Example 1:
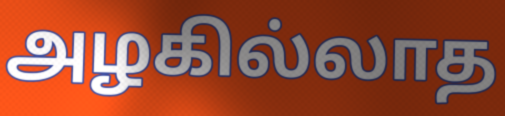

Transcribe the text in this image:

அழகில்லாத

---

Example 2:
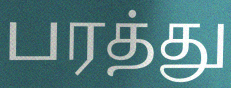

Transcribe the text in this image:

பரத்து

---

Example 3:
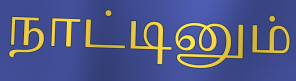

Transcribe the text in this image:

நாட்டினும்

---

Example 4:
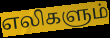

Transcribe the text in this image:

எலிகளும்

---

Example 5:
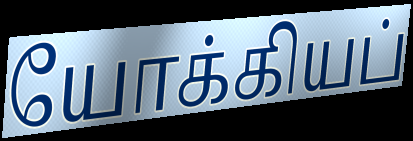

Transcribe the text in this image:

யோக்கியப்